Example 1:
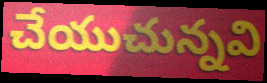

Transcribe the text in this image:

చేయుచున్నవి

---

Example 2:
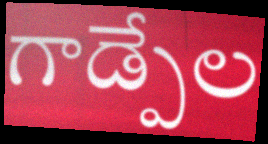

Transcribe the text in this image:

గాడ్పేల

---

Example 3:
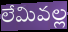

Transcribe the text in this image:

లేమివల్ల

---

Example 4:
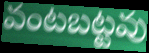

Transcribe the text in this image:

వంటబట్టవు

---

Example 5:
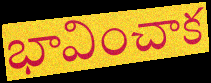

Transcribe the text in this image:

భావించాక